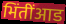
भिंतींआड